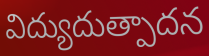
విద్యుదుత్పాదన